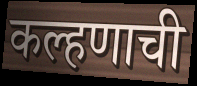
कल्हणाची